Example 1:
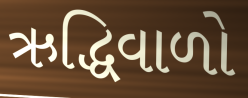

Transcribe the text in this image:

ઋદ્ધિવાળો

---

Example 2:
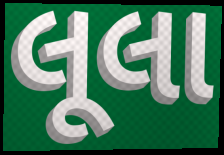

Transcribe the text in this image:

લૂલા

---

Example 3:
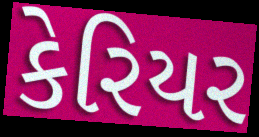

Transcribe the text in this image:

કેરિયર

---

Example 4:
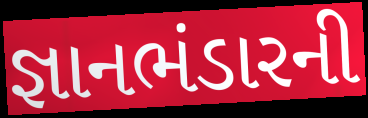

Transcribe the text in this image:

જ્ઞાનભંડારની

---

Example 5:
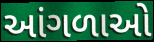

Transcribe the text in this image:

આંગળાઓ